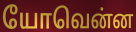
யோவென்ன